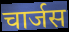
चार्जस